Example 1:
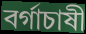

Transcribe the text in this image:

বর্গাচাষী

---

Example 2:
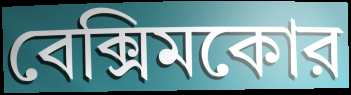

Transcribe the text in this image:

বেক্সিমকোর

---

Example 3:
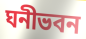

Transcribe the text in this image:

ঘনীভবন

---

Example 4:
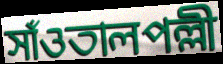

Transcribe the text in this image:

সাঁওতালপল্লী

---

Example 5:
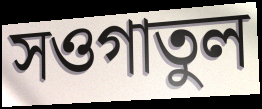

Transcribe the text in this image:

সওগাতুল